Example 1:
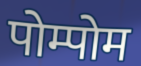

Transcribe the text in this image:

पोम्पोम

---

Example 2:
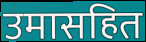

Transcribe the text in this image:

उमासहित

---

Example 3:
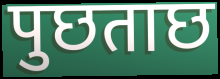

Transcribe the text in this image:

पुछताछ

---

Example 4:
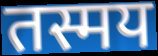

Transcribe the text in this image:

तस्मय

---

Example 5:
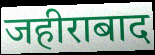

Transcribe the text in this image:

जहीराबाद